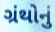
ગ્રંથોનું